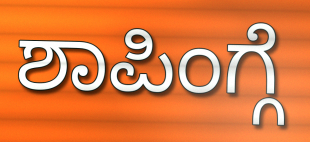
ಶಾಪಿಂಗ್ಗೆ